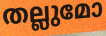
തല്ലുമോ